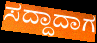
ಸದ್ದಾದಾಗ